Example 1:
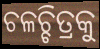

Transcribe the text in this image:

ଚଳଚ୍ଚିତ୍ରକୁ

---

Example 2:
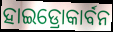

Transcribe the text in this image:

ହାଇଡ୍ରୋକାର୍ବନ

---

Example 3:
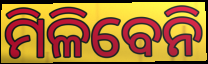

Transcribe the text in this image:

ମିଳିବେନି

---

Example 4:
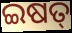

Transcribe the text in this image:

ଇଷତ୍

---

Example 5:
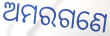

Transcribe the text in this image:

ଅମରଗଣେ